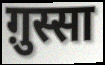
ग़ुस्सा